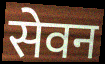
सेवन